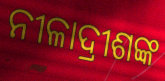
ନୀଳାଦ୍ରୀଶଙ୍କ